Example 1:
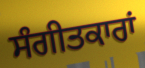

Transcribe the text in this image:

ਸੰਗੀਤਕਾਰਾਂ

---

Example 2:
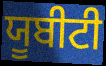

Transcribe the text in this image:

ਯੂਬੀਟੀ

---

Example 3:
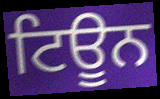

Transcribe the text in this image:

ਟਿਊਨ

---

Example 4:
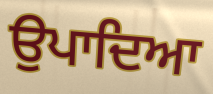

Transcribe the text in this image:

ਉਪਾਦਿਆ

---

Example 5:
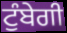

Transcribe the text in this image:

ਟੁੰਬੇਗੀ